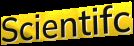
Scientifc